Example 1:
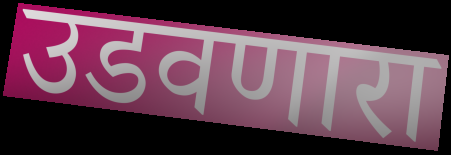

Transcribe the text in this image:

उडवणारा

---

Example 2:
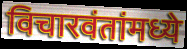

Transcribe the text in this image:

विचारवंतांमध्ये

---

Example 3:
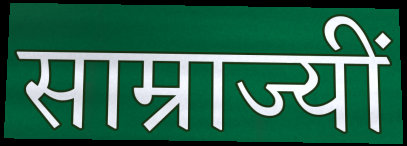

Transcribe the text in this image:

साम्राज्यीं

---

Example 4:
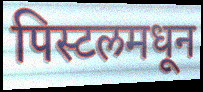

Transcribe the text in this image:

पिस्टलमधून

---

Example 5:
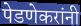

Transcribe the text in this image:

पेडणेकरांनी